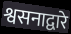
श्वसनाद्वारे